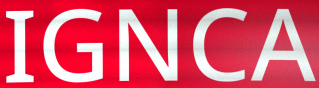
IGNCA